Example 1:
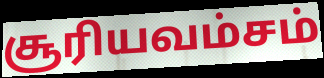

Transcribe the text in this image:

சூரியவம்சம்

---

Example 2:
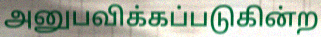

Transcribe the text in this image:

அனுபவிக்கப்படுகின்ற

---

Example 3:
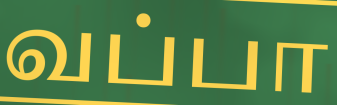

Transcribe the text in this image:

வப்பா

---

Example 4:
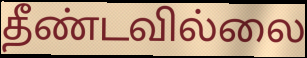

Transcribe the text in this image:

தீண்டவில்லை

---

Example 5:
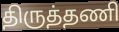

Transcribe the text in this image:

திருத்தணி